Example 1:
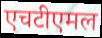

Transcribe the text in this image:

एचटीएमल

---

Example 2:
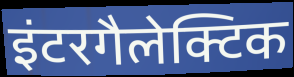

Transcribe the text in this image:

इंटरगैलेक्टिक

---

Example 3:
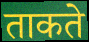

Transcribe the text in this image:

ताकते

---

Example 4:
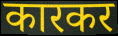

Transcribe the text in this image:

कारकर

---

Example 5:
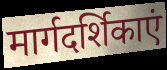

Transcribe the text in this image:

मार्गदर्शिकाएं